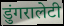
डुंगरालेटी